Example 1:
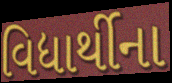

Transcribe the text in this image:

વિદ્યાર્થીના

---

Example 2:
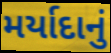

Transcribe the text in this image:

મર્યાદાનું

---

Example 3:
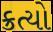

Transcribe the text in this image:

ક્રત્યો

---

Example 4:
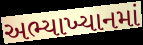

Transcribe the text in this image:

અભ્યાખ્યાનમાં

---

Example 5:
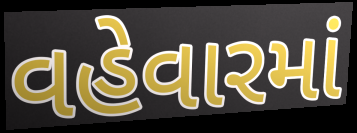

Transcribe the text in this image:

વહેવારમાં